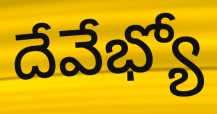
దేవేభ్యో